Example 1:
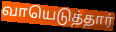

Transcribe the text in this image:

வாயெடுத்தார்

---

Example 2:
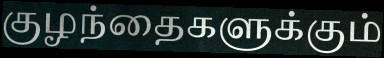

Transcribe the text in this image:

குழந்தைகளுக்கும்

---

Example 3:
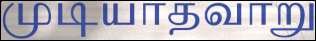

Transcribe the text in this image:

முடியாதவாறு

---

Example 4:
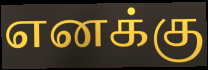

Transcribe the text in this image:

எனக்கு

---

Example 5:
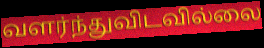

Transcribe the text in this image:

வளர்ந்துவிடவில்லை